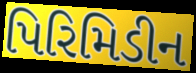
પિરિમિડીન